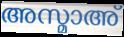
അസ്മാഅ്